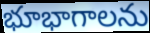
భూభాగాలను